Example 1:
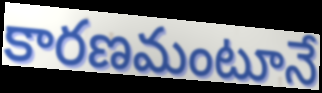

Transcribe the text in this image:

కారణమంటూనే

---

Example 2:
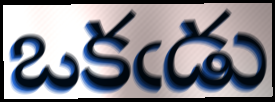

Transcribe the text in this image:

ఒకఁడు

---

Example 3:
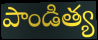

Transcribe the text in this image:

పాండిత్య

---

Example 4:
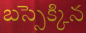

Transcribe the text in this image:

బస్సెక్కిన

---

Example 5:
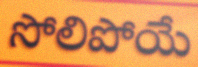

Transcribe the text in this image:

సోలిపోయే